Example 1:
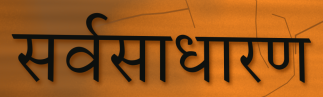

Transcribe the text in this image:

सर्वसाधारण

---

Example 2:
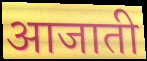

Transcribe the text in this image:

आजाती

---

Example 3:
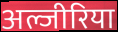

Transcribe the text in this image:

अल्जीरिया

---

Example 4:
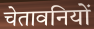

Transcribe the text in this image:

चेतावनियों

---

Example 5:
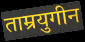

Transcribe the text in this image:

ताम्रयुगीन